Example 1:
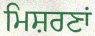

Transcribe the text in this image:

ਮਿਸ਼ਰਣਾਂ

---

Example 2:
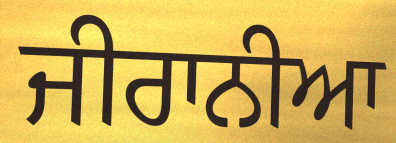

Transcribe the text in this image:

ਜੀਰਾਨੀਆ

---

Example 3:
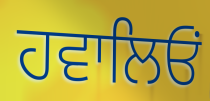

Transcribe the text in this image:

ਹਵਾਲਿਓਂ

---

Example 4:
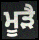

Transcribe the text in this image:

ਮੂੜੈ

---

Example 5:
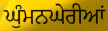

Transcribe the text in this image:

ਘੁੰਮਨਘੇਰੀਆਂ